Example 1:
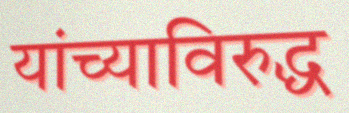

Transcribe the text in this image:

यांच्याविरुद्ध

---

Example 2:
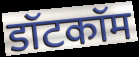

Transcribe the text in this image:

डॉटकॉम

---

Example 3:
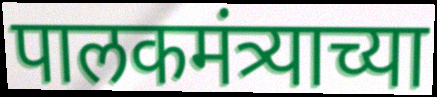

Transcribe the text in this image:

पालकमंत्र्याच्या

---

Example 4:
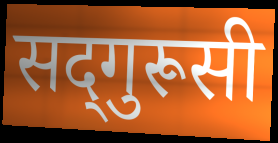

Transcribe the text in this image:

सद्‍गुरूसी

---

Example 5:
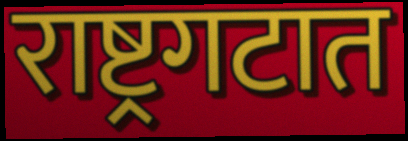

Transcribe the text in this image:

राष्ट्रगटात